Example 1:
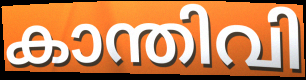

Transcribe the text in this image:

കാന്തിവി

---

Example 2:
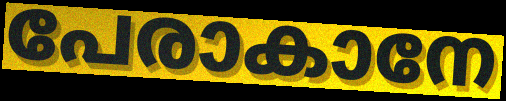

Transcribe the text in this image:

പേരാകാനേ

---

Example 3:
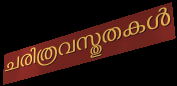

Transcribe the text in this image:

ചരിത്രവസ്തുതകൾ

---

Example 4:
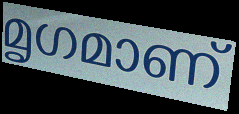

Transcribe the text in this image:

മൃഗമാണ്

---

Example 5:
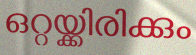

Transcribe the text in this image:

ഒറ്റയ്ക്കിരിക്കും